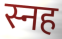
स्नह